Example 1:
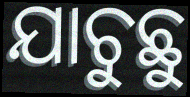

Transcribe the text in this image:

ଯାଚୁଛୁ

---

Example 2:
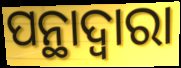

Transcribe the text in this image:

ପନ୍ଥାଦ୍ୱାରା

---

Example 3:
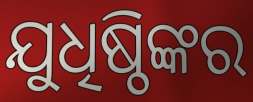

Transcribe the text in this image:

ଯୁଧିଷ୍ଠିଙ୍କର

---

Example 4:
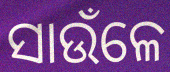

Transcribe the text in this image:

ସାଉଁଳେ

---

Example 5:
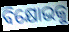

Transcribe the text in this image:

ବିକ୍ଷୋଭକୁ